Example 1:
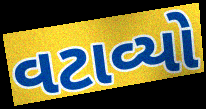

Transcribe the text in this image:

વટાવ્યો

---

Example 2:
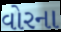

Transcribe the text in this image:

વોરના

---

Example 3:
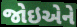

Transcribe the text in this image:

જોઇએને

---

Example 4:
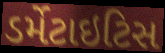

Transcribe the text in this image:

ડર્મેટાઇટિસ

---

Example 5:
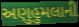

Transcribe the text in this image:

અણુહુમલાની